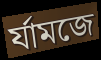
র্যামজে